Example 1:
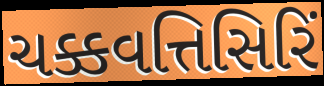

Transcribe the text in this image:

ચક્કવત્તિસિરિં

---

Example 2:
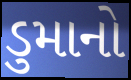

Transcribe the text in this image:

ડુમાનો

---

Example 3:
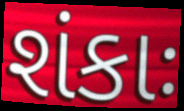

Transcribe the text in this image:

શંકાઃ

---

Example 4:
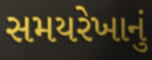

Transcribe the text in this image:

સમયરેખાનું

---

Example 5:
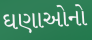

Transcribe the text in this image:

ઘણાઓનો